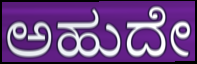
ಅಹುದೇ